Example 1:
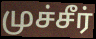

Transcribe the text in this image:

முச்சீர்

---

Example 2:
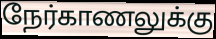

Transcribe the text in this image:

நேர்காணலுக்கு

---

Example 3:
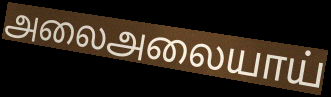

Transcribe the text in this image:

அலைஅலையாய்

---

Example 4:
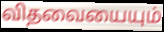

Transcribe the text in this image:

விதவையையும்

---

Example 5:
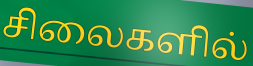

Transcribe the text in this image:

சிலைகளில்